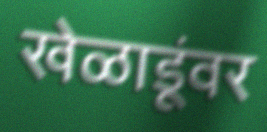
खेळाडूंवर